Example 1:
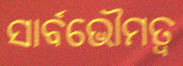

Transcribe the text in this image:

ସାର୍ବଭୌମତ୍ବ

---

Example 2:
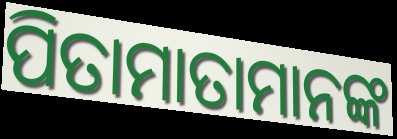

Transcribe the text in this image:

ପିତାମାତାମାନଙ୍କ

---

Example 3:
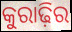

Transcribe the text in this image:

କୁରାଢ଼ିର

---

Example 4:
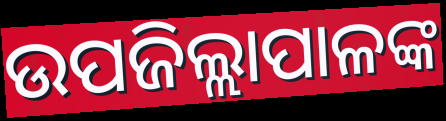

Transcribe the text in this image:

ଉପଜିଲ୍ଲାପାଳଙ୍କ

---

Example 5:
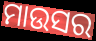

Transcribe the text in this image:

ମାଉସର